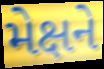
મેક્ષને